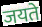
जयते